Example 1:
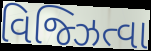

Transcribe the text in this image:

વિજ્ઝિત્વા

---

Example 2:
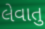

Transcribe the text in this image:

લેવાતુ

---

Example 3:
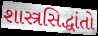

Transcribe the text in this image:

શાસ્ત્રસિદ્ધાંતો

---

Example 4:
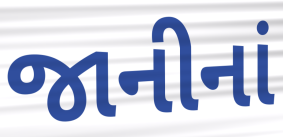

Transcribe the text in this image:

જાનીનાં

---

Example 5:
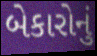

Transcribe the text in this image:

બેકારોનું